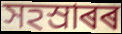
সহস্ৰাৰৰ